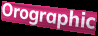
Orographic